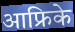
आफ्रिके